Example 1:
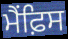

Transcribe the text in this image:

ਮੈਂਫ਼ਿਸ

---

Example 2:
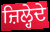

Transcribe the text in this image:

ਜ਼ਿਲ੍ਹੇਦੇ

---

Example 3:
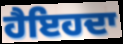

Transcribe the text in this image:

ਹੈਇਹਦਾ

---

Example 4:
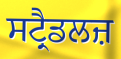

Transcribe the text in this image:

ਸਟ੍ਰੈਡਲਜ਼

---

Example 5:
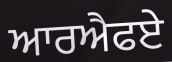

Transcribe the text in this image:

ਆਰਐਫਏ